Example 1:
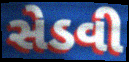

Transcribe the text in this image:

સેડવી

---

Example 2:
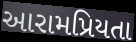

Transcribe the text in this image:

આરામપ્રિયતા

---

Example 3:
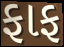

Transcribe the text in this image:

ફાફ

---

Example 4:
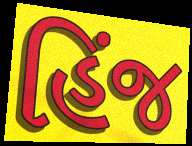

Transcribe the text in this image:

હિંજ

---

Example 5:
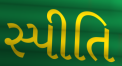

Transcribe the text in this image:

સ્પીતિ